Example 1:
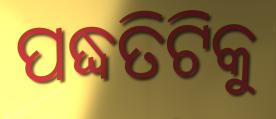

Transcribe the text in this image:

ପଦ୍ଧତିଟିକୁ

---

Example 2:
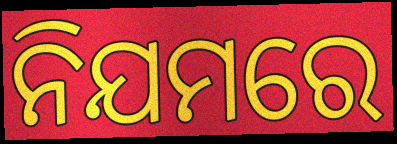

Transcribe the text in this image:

ନିଯମରେ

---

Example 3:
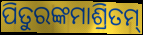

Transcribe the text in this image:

ପିତୁରଙ୍କମାଶ୍ରିତମ୍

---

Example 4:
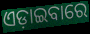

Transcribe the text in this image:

ଏଡ଼ାଇବାରେ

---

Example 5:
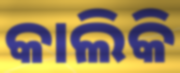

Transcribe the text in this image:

କାଲିକି